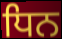
ਧਿਨ